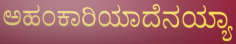
ಅಹಂಕಾರಿಯಾದೆನಯ್ಯಾ